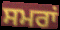
ਸਮਰਾਂ